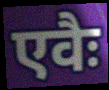
एवैः